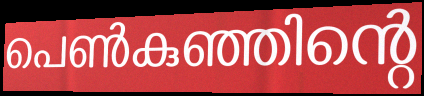
പെൺകുഞ്ഞിന്റെ